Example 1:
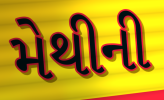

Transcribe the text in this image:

મેથીની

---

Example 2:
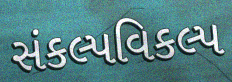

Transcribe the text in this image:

સંકલ્પવિકલ્પ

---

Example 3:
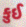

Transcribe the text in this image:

કુઈ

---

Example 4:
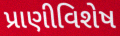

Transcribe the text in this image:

પ્રાણીવિશેષ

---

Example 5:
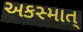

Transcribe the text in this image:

અકસ્માત્